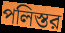
পলিস্তর